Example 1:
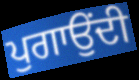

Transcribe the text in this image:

ਪੁਗਾਉਂਦੀ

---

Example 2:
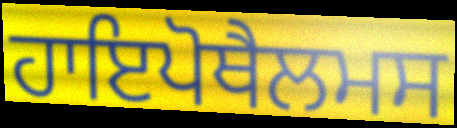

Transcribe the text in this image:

ਹਾਇਪੋਥੈਲਮਸ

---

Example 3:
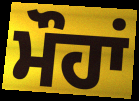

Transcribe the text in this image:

ਮੌਹਾਂ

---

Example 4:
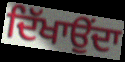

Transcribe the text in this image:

ਦਿੱਖਾਉਂਦਾ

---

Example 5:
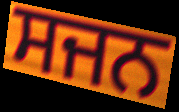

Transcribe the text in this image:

ਸਜਨ